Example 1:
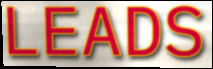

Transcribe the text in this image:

LEADS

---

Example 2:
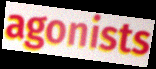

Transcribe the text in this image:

agonists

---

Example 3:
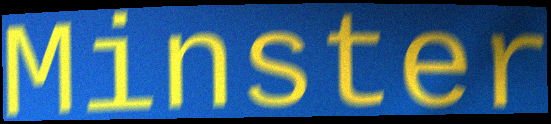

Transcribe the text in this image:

Minster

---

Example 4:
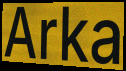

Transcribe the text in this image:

Arka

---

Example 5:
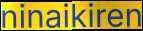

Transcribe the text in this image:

ninaikiren